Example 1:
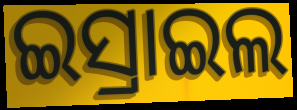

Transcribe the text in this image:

ଇସ୍ରାଇଲ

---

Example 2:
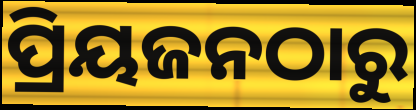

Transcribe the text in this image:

ପ୍ରିୟଜନଠାରୁ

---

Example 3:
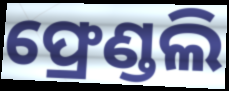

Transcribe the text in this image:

ଫ୍ରେଣ୍ଡଲି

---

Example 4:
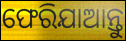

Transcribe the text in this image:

ଫେରିଯାଆନ୍ତୁ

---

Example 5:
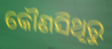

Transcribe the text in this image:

କୌଣସିଥିରୁ